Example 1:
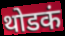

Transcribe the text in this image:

थोडकं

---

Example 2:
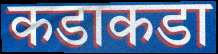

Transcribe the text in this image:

कडाकडा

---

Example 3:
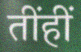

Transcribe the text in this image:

तींहीं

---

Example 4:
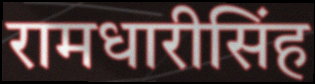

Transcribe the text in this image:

रामधारीसिंह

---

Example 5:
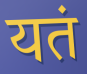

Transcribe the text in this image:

यतं